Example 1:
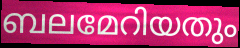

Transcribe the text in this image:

ബലമേറിയതും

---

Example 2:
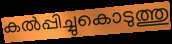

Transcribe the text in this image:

കൽപ്പിച്ചുകൊടുത്തു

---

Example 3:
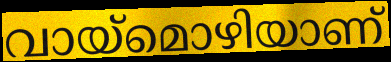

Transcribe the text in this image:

വായ്മൊഴിയാണ്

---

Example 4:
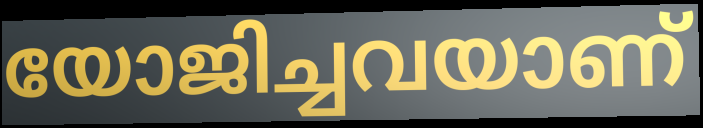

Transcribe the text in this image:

യോജിച്ചവയാണ്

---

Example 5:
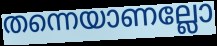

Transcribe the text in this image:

തന്നെയാണല്ലോ